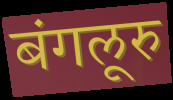
बंगलूरु